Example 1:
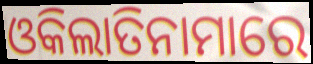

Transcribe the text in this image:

ଓକିଲାତିନାମାରେ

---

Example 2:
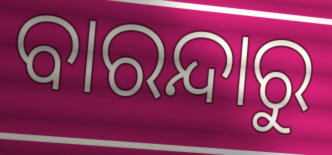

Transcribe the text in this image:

ବାରନ୍ଦାରୁ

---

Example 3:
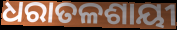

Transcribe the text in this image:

ଧରାତଳଶାୟୀ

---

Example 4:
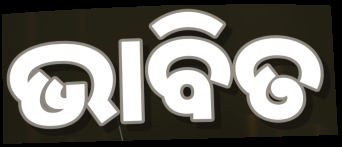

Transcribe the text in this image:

ଭାବିତ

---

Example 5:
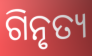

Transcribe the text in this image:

ଗିନୃତ୍ୟ